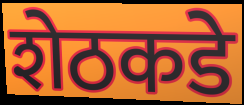
शेठकडे